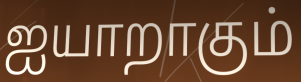
ஐயாறாகும்